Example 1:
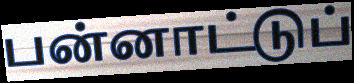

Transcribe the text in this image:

பன்னாட்டுப்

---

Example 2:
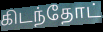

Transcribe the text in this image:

கிடந்தோட்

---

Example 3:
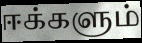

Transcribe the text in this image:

ஈக்களும்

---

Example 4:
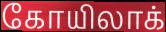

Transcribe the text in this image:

கோயிலாக்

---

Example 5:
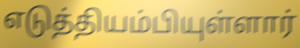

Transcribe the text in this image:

எடுத்தியம்பியுள்ளார்